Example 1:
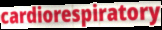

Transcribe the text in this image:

cardiorespiratory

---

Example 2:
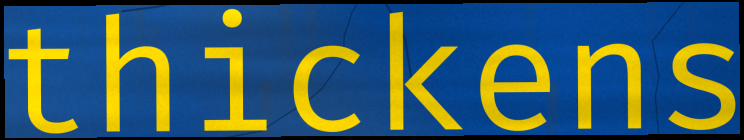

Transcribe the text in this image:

thickens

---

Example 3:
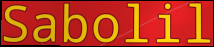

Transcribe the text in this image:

Sabolil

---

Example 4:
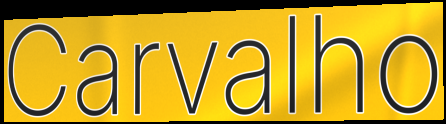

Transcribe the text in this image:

Carvalho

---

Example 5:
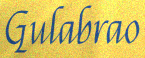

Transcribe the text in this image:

Gulabrao